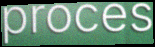
proces